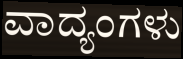
ವಾದ್ಯಂಗಳು